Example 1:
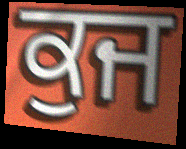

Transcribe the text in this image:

ਕੁਜ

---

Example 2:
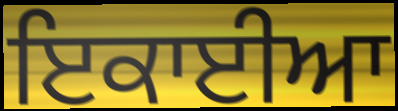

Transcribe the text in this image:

ਇਕਾਈਆ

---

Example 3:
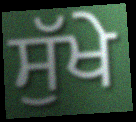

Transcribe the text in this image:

ਸੁੱਖੇ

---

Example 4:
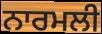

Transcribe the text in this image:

ਨਾਰਮਲੀ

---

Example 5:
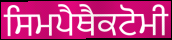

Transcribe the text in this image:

ਸਿਮਪੈਥੈਕਟੋਮੀ